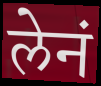
लेनं